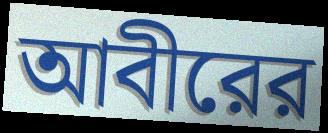
আবীরের